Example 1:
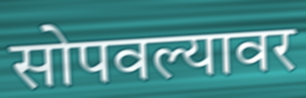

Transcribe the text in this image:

सोपवल्यावर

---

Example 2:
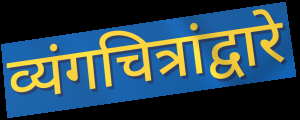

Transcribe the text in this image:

व्यंगचित्रांद्वारे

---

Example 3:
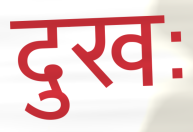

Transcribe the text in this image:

दुखः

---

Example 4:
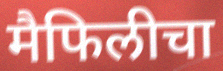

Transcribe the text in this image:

मैफिलीचा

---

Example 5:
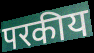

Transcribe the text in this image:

परकीय